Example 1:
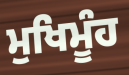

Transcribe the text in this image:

ਮੁਖਿਮੂੰਹ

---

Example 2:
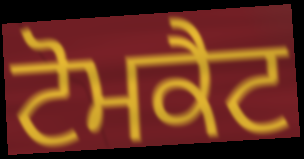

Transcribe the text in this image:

ਟੋਮਕੈਟ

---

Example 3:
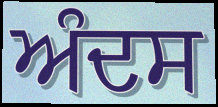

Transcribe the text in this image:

ਅੰਦਸ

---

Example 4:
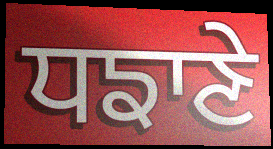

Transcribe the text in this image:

ਧਙਾਣੇ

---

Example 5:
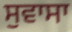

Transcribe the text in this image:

ਸੁਵਾਸਾ